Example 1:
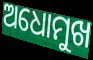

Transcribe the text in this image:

ଅଧୋମୁଖ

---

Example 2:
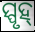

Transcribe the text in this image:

ସ୍ପୃହ୍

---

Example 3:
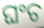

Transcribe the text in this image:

ଘଂଚ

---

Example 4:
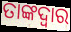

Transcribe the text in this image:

ତାଙ୍କଦ୍ୱାର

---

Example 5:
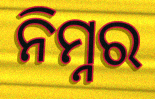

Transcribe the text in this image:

ନିମ୍ନର